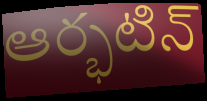
ఆర్భటిన్